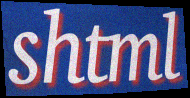
shtml